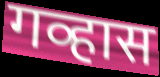
गव्हास